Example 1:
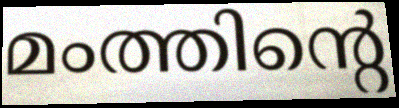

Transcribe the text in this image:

മംത്തിന്റെ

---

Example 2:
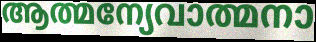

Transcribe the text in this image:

ആത്മന്യേവാത്മനാ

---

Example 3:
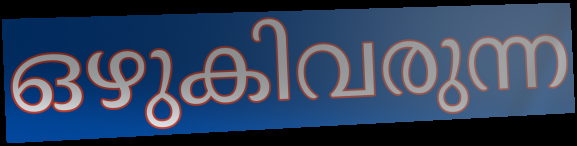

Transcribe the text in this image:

ഒഴുകിവരുന്ന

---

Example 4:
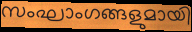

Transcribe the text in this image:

സംഘാംഗങ്ങളുമായി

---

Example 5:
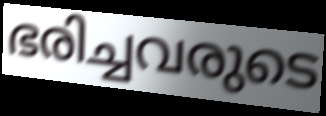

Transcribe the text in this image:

ഭരിച്ചവരുടെ